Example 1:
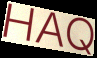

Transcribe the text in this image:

HAQ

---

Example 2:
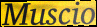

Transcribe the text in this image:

Muscio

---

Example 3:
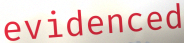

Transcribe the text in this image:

evidenced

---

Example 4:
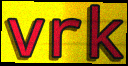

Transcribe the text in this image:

vrk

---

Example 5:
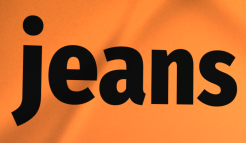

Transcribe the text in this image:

jeans